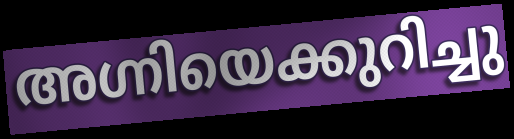
അഗ്നിയെക്കുറിച്ചു